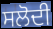
ਸਲੋਦੀ